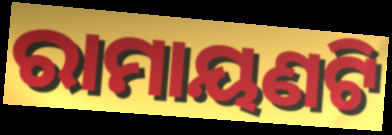
ରାମାୟଣଟି